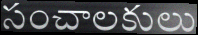
సంచాలకులు